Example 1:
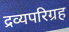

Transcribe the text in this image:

द्रव्यपरिग्रह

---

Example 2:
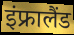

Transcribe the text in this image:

इंफ्रालैंड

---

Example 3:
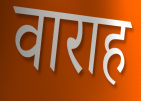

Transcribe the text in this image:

वाराह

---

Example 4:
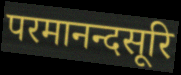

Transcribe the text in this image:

परमानन्दसूरि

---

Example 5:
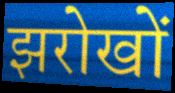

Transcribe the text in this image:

झरोखों